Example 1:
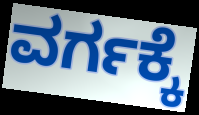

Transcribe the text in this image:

ವರ್ಗಕ್ಕೆ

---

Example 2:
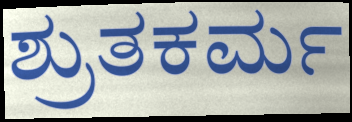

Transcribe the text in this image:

ಶ್ರುತಕರ್ಮ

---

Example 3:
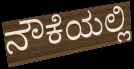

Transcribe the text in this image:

ನೌಕೆಯಲ್ಲಿ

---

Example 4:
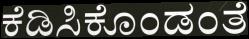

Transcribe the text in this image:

ಕೆಡಿಸಿಕೊಂಡಂತೆ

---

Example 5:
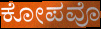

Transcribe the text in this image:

ಕೋಪವೊ